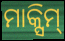
ମାକ୍ସିମ୍